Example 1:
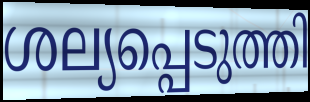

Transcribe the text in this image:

ശല്യപ്പെടുത്തി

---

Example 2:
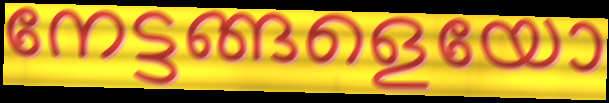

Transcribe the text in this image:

നേട്ടങ്ങളെയോ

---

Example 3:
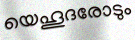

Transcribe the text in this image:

യെഹൂദരോടും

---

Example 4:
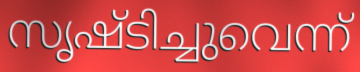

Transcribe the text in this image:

സൃഷ്ടിച്ചുവെന്ന്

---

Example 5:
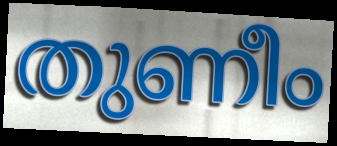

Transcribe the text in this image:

തുണീം